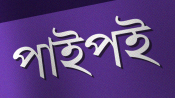
পাইপই